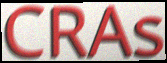
CRAs